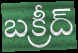
బక్రీద్